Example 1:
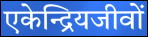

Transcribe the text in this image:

एकेन्द्रियजीवों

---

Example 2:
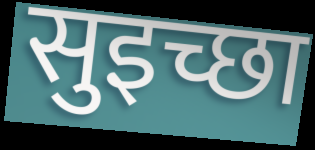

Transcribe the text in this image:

सुइच्छा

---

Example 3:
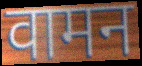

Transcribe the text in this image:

वामन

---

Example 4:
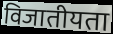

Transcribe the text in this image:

विजातीयता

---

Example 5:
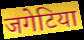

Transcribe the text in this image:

जगेटिया